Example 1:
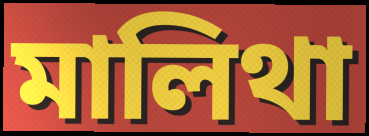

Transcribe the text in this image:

মালিথা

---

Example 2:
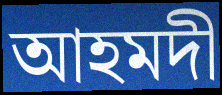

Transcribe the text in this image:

আহমদী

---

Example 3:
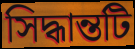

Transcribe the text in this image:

সিদ্ধান্তটি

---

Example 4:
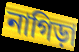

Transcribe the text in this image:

নাগিড়া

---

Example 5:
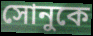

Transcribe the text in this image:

সোনুকে